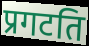
प्रगटति